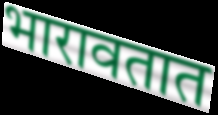
भारावतात